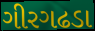
ગીરગઢડા